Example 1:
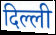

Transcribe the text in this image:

दिल्ली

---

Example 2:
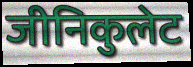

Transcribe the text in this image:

जीनिकुलेट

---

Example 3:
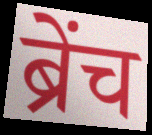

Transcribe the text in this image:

ब्रेंच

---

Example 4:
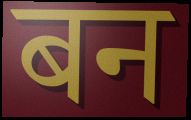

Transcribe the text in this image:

बन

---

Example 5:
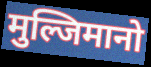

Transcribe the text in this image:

मुल्जिमानो